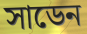
সাডেন